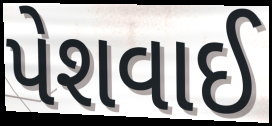
પેશવાઈ